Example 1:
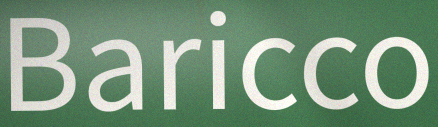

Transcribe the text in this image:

Baricco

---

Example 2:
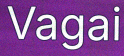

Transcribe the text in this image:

Vagai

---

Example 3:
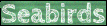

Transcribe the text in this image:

Seabirds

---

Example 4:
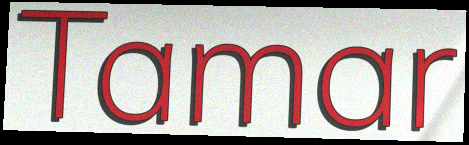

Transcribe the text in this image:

Tamar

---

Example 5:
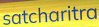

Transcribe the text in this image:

satcharitra